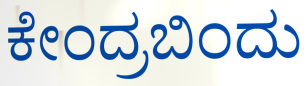
ಕೇಂದ್ರಬಿಂದು